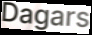
Dagars